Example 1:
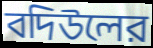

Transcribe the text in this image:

বদিউলের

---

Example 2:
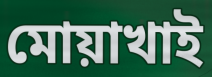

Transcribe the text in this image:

মোয়াখাই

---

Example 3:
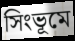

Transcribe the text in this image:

সিংভূমে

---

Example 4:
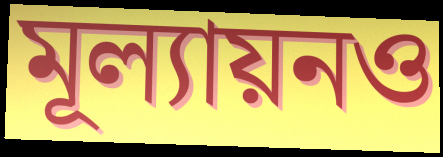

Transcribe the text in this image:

মূল্যায়নও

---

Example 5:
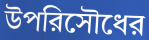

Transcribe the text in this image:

উপরিসৌধের